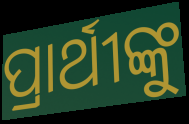
ପ୍ରାର୍ଥୀଙ୍କୁ